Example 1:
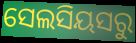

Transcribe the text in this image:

ସେଲସିୟସରୁ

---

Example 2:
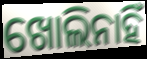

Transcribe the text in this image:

ଖୋଲିନାହିଁ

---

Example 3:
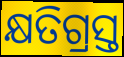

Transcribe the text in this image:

କ୍ଷତିଗ୍ରସ୍ତ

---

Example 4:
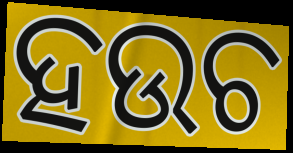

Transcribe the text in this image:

ହଉଚ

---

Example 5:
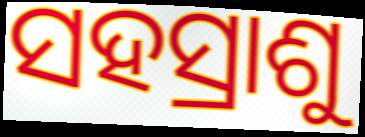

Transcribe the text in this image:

ସହସ୍ରାଶୁ